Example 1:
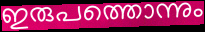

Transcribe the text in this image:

ഇരുപത്തൊന്നും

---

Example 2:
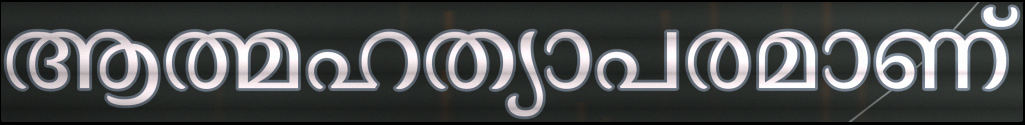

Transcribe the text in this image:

ആത്മഹത്യാപരമാണ്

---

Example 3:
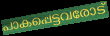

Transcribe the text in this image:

പാകപ്പെട്ടവരോട്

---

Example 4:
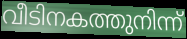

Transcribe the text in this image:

വീടിനകത്തുനിന്ന്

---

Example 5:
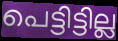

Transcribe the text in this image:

പെട്ടിട്ടില്ല